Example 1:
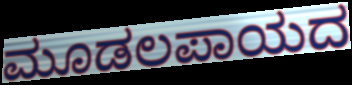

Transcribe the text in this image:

ಮೂಡಲಪಾಯದ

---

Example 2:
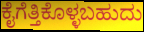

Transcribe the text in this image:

ಕೈಗೆತ್ತಿಕೊಳ್ಳಬಹುದು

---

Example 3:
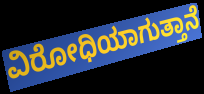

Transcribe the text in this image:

ವಿರೋಧಿಯಾಗುತ್ತಾನೆ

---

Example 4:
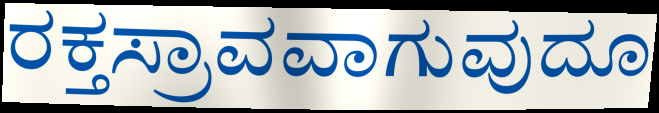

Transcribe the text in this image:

ರಕ್ತಸ್ರಾವವಾಗುವುದೂ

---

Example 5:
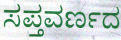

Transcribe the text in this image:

ಸಪ್ತವರ್ಣದ